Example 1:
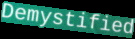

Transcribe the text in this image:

Demystified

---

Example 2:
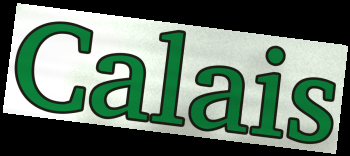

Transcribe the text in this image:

Calais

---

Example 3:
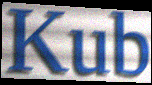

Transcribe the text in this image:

Kub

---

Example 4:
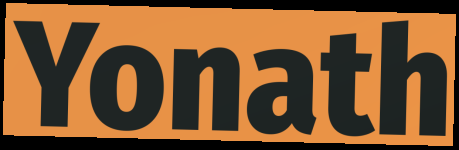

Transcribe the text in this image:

Yonath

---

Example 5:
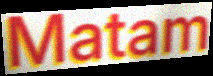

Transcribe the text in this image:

Matam